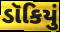
ડૉકિયું